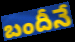
బందీనే